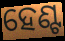
ହେଣ୍ଟ